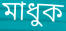
মাধুক